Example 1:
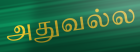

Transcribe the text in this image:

அதுவல்ல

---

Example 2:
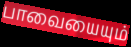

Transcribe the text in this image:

பாவையையும்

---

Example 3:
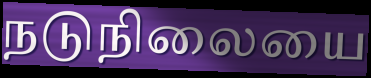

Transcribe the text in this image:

நடுநிலையை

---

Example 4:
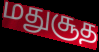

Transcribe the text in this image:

மதுசூத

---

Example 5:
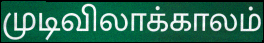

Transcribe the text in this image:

முடிவிலாக்காலம்